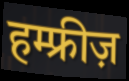
हम्फ्रीज़